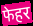
फेहर